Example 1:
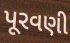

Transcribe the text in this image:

પૂરવણી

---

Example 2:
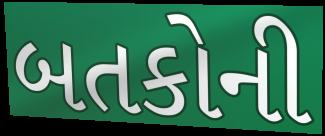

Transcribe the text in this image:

બતકોની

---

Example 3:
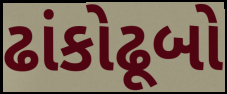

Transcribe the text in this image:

ઢાંકોઢૂબો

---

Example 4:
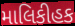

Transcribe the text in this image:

માલિકીહક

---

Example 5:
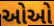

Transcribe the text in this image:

ઓઓ